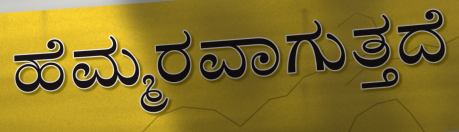
ಹೆಮ್ಮರವಾಗುತ್ತದೆ